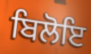
ਬਿਲੋਇ